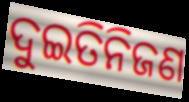
ଦୁଇତିନିଜଣ